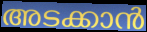
അടക്കാൻ